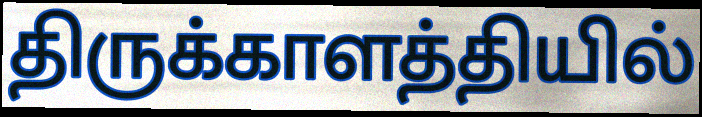
திருக்காளத்தியில்